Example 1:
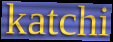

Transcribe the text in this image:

katchi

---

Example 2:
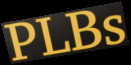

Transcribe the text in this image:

PLBs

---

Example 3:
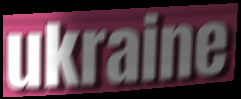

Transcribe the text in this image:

ukraine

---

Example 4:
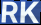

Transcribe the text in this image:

RK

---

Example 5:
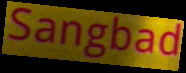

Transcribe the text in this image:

Sangbad